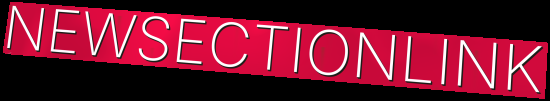
NEWSECTIONLINK